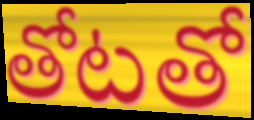
తోటతో